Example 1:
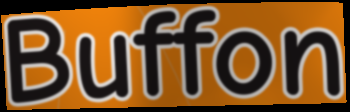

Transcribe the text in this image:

Buffon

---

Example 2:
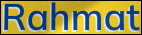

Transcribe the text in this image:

Rahmat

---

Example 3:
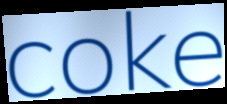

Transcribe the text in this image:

coke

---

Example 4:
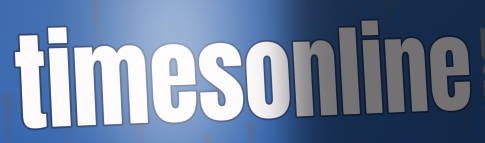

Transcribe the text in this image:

timesonline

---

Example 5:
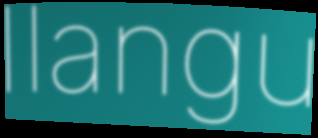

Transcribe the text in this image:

Ilangu